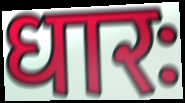
धारः